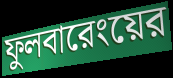
ফুলবারেংয়ের